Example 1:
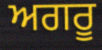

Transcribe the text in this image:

ਅਗਰੂ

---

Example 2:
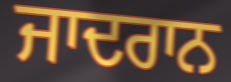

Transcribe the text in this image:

ਜਾਦਰਾਨ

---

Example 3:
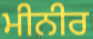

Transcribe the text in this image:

ਮੀਨੀਰ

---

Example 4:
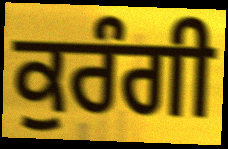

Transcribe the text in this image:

ਕੁਰੰਗੀ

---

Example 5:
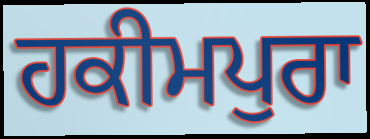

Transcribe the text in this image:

ਹਕੀਮਪੁਰਾ